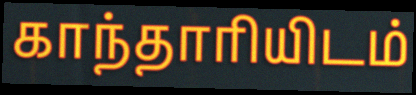
காந்தாரியிடம்